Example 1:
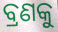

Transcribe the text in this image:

ବ୍ରଣକୁ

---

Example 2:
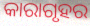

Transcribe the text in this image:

କାରାଗୃହର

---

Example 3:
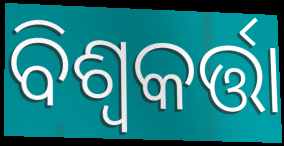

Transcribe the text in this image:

ବିଶ୍ୱକର୍ତ୍ତା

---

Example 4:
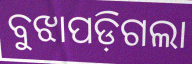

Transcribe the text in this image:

ବୁଝାପଡ଼ିଗଲା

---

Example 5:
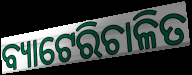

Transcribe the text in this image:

ବ୍ୟାଟେରିଚାଳିତ